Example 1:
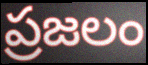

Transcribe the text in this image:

ప్రజలం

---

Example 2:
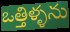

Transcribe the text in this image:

ఒత్తిళ్ళను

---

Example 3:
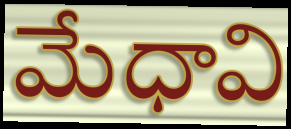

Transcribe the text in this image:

మేధావి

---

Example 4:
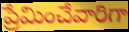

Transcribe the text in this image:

ప్రేమించేవారిగా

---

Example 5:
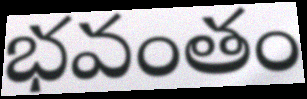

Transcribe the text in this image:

భవంతం